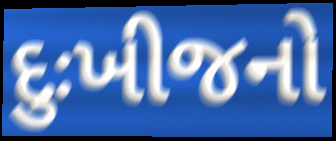
દુઃખીજનો